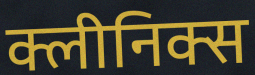
क्लीनिक्स